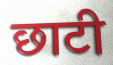
छाटी